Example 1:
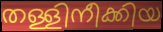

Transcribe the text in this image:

തള്ളിനീക്കിയ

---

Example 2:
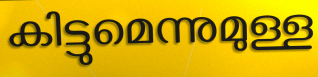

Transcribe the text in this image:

കിട്ടുമെന്നുമുള്ള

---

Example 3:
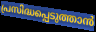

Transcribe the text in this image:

പ്രസിദ്ധപ്പെടുത്താൻ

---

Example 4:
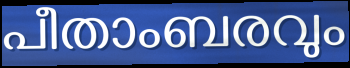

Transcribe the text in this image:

പീതാംബരവും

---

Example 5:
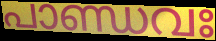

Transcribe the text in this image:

പാണ്ഡവഃ